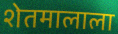
शेतमालाला